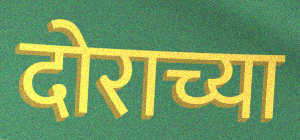
दोराच्या